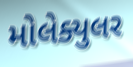
મોલેક્યુલર